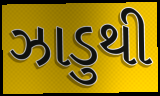
ઝાડુથી